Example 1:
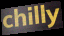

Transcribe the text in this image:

chilly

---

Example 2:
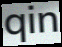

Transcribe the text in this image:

qin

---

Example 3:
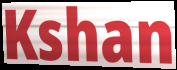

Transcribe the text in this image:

Kshan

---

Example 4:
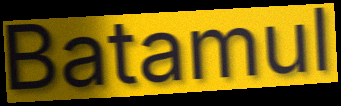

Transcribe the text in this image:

Batamul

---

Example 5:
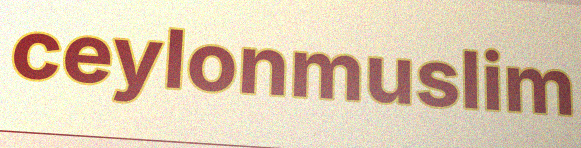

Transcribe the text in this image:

ceylonmuslim